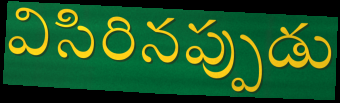
విసిరినప్పుడు